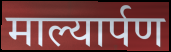
माल्यार्पण